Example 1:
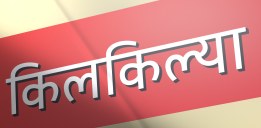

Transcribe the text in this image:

किलकिल्या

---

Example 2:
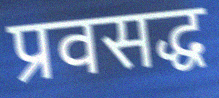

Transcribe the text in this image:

प्रवसद्ध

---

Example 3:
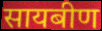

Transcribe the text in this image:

सायबीण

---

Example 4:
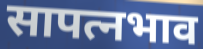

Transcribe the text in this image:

सापत्नभाव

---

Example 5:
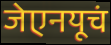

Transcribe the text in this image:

जेएनयूचं